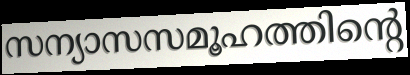
സന്യാസസമൂഹത്തിന്റെ